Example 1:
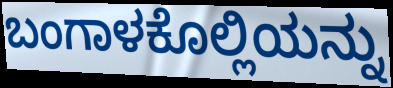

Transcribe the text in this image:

ಬಂಗಾಳಕೊಲ್ಲಿಯನ್ನು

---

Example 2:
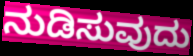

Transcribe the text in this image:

ನುಡಿಸುವುದು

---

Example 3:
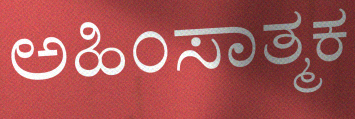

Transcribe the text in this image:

ಅಹಿಂಸಾತ್ಮಕ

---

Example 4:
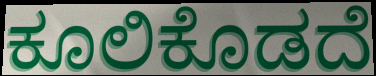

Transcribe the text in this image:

ಕೂಲಿಕೊಡದೆ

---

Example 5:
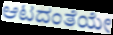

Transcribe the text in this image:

ಆಟದಂತೆಯೇ